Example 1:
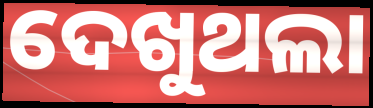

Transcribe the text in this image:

ଦେଖୁଥଲା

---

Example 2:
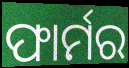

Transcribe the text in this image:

ଫାର୍ମର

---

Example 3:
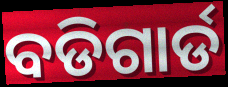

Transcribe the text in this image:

ବଡିଗାର୍ଡ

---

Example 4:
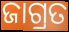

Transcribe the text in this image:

ଜାଗ୍ରତ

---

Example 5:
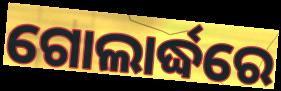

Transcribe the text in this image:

ଗୋଲାର୍ଦ୍ଧରେ